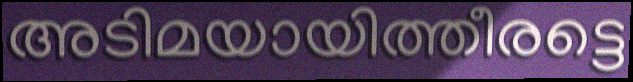
അടിമയായിത്തീരട്ടെ